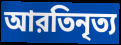
আরতিনৃত্য